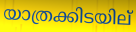
യാത്രക്കിടയില്